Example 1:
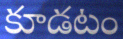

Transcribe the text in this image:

కూడటం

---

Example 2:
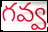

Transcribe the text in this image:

గవ్వ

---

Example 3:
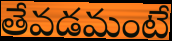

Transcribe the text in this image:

తేవడమంటే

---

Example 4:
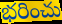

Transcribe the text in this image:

భరించు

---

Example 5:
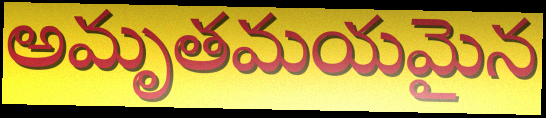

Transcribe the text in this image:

అమృతమయమైన